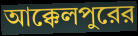
আক্কেলপুরের